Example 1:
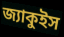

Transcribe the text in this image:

জ্যাকুইস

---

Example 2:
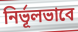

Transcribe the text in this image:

নির্ভূলভাবে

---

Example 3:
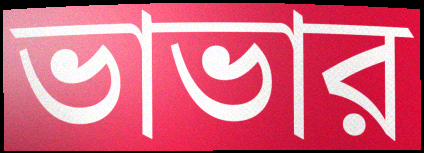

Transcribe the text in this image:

ভাভার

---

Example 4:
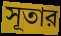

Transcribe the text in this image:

সূতার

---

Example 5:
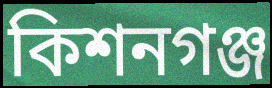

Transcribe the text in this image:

কিশনগঞ্জ